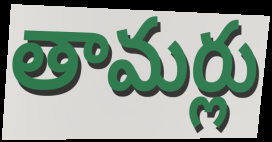
తామర్లు